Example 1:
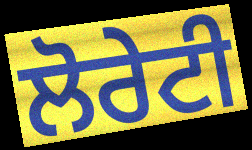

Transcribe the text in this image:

ਲੋਰੇਟੀ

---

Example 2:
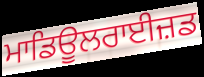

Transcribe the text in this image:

ਮਾਡਿਊਲਰਾਈਜ਼ਡ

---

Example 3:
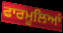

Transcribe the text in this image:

ਫਾਰਮੂਲਿਆਂ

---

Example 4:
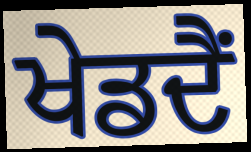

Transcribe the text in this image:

ਖੇਡਦੈਂ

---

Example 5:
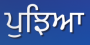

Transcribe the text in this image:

ਪੁਝਿਆ